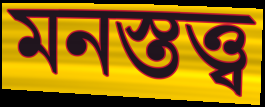
মনস্তত্ত্ব